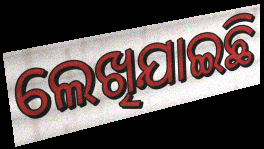
ଲେଖିଯାଇଛି